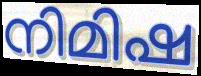
നിമിഷ